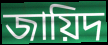
জায়িদ